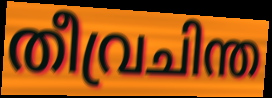
തീവ്രചിന്ത